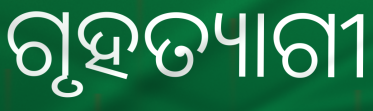
ଗୃହତ୍ୟାଗୀ